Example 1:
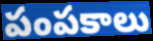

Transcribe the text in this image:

పంపకాలు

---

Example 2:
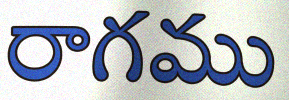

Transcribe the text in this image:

రాగము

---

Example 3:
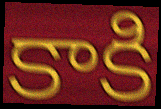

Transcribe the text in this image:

కాకి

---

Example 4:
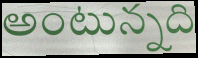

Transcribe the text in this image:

అంటున్నది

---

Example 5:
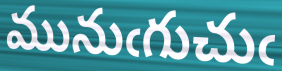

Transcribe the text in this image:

మునుఁగుచుఁ